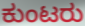
ಕುಂಟರು